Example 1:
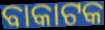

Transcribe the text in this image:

ବାକାଟକ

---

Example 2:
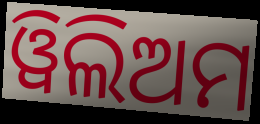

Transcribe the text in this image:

ୱିଲିଅମ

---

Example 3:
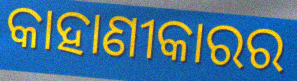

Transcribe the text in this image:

କାହାଣୀକାରର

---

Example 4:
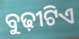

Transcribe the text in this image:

ବୁଢ଼ୀଟିଏ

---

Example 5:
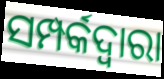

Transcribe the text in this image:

ସମ୍ପର୍କଦ୍ୱାରା